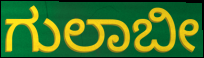
ಗುಲಾಬೀ